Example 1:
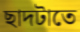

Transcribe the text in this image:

ছাদটাতে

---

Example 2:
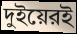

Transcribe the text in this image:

দুইয়েরই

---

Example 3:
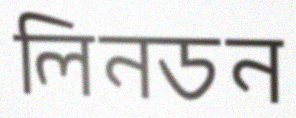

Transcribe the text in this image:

লিনডন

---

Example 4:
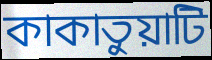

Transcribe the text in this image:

কাকাতুয়াটি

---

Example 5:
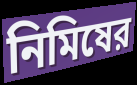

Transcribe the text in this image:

নিমিষের